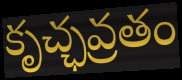
కృచ్ఛవ్రతం